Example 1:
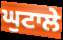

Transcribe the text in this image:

ਘੁਟਾਲੇ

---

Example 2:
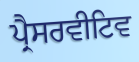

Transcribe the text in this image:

ਪ੍ਰੈਸਰਵੀਟਿਵ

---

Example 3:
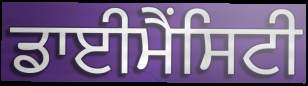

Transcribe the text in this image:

ਡਾਈਮੈਂਸਿਟੀ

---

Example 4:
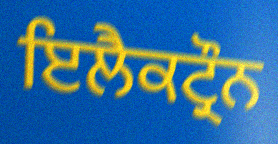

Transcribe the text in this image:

ਇਲੈਕਟ੍ਰੌਨ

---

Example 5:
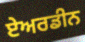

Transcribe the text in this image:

ਏਅਰਡੀਨ